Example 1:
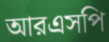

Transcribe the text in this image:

আরএসপি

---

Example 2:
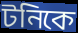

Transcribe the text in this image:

টনিকে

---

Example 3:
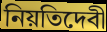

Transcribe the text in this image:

নিয়তিদেবী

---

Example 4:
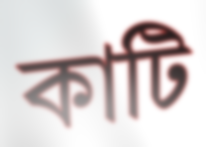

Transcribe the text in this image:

কাটি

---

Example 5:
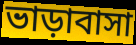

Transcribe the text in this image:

ভাড়াবাসা